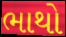
ભાથો